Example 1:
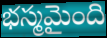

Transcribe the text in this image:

భస్మమైంది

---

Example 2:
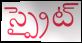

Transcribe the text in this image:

స్ప్రైట్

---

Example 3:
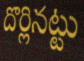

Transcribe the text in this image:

దొర్లినట్టు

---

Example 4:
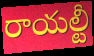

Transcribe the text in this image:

రాయల్టీ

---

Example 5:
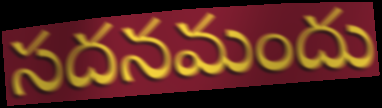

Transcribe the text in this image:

సదనమందు